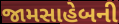
જામસાહેબની